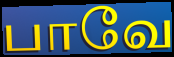
பாவே